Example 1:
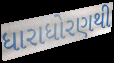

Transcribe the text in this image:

ધારાધોરણથી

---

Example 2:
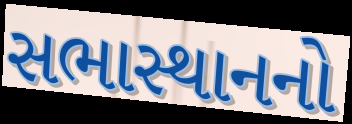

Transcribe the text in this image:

સભાસ્થાનનો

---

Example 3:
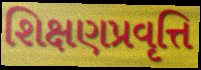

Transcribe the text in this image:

શિક્ષણપ્રવૃત્તિ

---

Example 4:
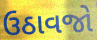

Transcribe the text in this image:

ઉઠાવજો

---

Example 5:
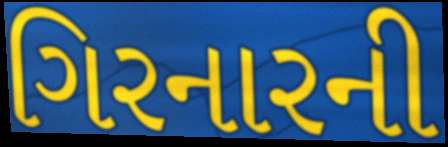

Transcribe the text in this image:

ગિરનારની